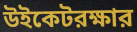
উইকেটরক্ষার